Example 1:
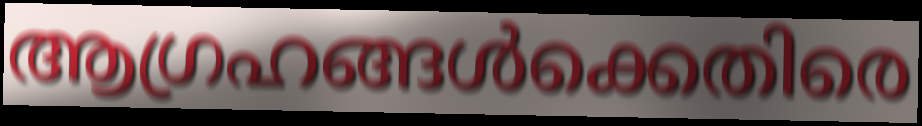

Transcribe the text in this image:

ആഗ്രഹങ്ങൾക്കെതിരെ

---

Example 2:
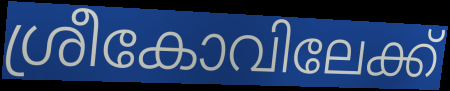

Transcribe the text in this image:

ശ്രീകോവിലേക്ക്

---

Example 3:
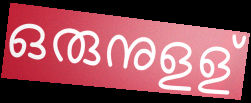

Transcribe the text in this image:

ഒരുനുളള്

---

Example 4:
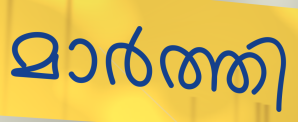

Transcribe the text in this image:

മാർത്തി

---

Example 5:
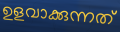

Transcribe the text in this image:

ഉളവാക്കുന്നത്